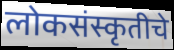
लोकसंस्कृतीचे